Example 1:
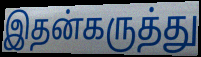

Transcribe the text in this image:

இதன்கருத்து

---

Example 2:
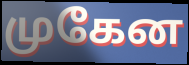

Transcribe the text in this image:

முகேன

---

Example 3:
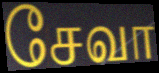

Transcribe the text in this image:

சேவா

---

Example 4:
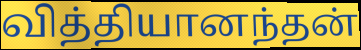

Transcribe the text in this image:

வித்தியானந்தன்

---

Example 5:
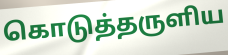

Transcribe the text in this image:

கொடுத்தருளிய